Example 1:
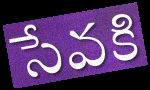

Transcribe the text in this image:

సేవకి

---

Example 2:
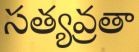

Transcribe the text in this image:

సత్యవ్రతా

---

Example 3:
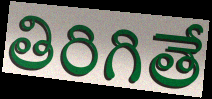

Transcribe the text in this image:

తిరిగితే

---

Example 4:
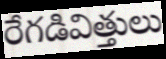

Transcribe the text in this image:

రేగడివిత్తులు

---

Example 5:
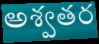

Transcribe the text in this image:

అశ్వతర